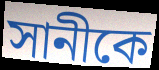
সানীকে